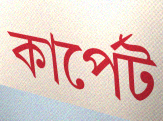
কার্পেট